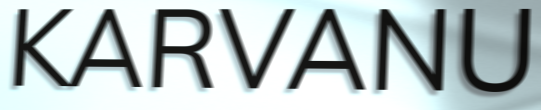
KARVANU